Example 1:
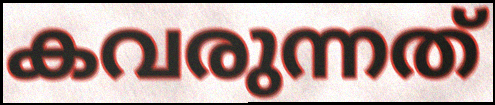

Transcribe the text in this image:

കവരുന്നത്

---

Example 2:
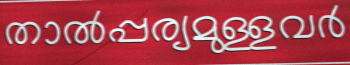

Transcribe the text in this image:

താൽപ്പര്യമുള്ളവർ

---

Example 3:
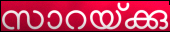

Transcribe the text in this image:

സാറയ്‌ക്കു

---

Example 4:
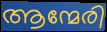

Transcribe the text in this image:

ആന്മേരി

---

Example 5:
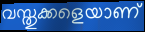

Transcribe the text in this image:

വസ്തുക്കളെയാണ്